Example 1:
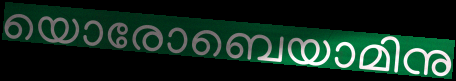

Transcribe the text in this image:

യൊരോബെയാമിനു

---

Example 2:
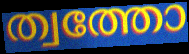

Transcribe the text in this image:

ത്വത്തോ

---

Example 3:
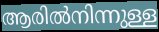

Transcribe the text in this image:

ആരിൽനിന്നുള്ള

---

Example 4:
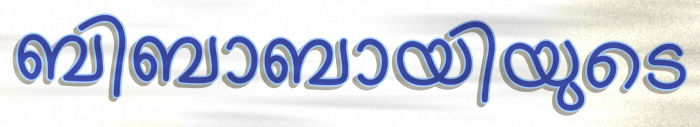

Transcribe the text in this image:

ബിബാബായിയുടെ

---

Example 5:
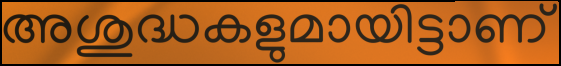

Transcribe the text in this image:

അശുദ്ധകളുമായിട്ടാണ്